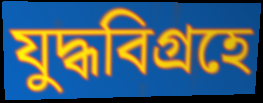
যুদ্ধবিগ্রহে